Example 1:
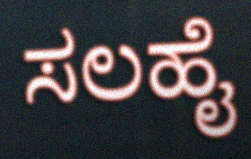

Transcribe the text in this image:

ಸಲಹೈ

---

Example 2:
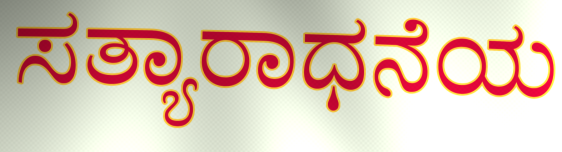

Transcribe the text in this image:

ಸತ್ಯಾರಾಧನೆಯ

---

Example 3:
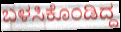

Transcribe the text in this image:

ಬಳಸಿಕೊಂಡಿದ್ದ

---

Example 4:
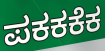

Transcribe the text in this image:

ಪಕಕಕೆಕ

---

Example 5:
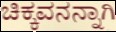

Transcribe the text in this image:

ಚಿಕ್ಕವನನ್ನಾಗಿ